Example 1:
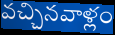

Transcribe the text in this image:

వచ్చినవాళ్లం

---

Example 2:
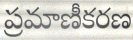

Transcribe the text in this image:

ప్రమాణీకరణ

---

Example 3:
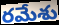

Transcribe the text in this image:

రమేశు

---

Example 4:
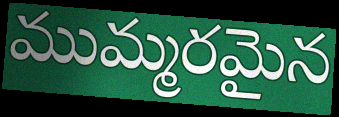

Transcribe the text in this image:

ముమ్మరమైన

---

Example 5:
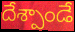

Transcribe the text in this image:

దేశ్పాండే